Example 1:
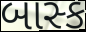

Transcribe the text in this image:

બાસ્ક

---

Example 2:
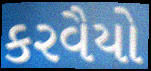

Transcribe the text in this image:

કરવૈયો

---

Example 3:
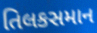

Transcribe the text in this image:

તિલકસમાન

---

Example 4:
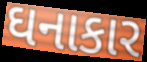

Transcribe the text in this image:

ઘનાકાર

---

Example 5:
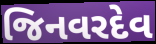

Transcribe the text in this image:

જિનવરદેવ